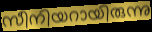
സീനിയറായിരുന്നു